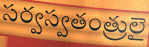
సర్వస్వతంత్రులై